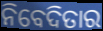
ନିବେଦିତାର